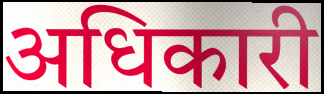
अधिकारी